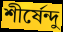
শীর্ষেন্দু